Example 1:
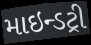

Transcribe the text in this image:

માઇન્ડટ્રી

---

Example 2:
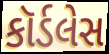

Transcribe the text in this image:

કૉર્ડલેસ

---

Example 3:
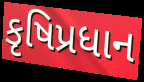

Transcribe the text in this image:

કૃષિપ્રધાન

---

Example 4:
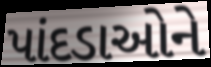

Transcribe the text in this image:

પાંદડાઓને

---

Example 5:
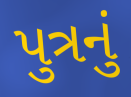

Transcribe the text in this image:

પુત્રનું